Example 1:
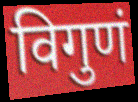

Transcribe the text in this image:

विगुणं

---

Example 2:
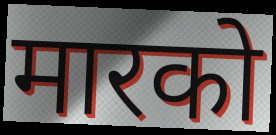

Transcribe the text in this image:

मारको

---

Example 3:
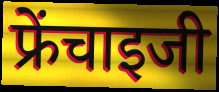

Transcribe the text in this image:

फ्रेंचाइजी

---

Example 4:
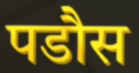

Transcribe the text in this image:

पडौस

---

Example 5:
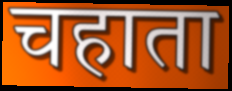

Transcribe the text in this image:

चहाता